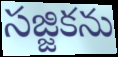
సజ్జికను